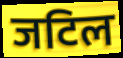
जटिल